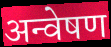
अन्वेषण